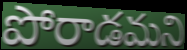
పోరాడమని